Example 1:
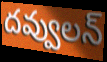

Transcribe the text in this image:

దవ్వులన్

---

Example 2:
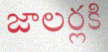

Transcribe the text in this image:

జాలర్లకి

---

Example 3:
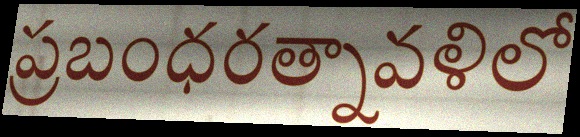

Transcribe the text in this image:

ప్రబంధరత్నావళిలో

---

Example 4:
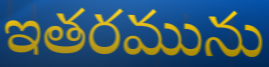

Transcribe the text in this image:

ఇతరమును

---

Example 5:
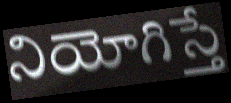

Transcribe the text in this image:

నియోగిస్తే